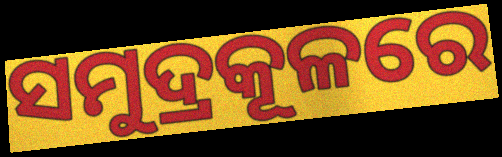
ସମୁଦ୍ରକୂଳରେ